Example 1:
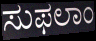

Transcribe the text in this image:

ಸುಫಲಾಂ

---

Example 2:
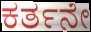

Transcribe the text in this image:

ಕರ್ತನೇ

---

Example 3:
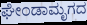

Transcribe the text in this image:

ಘೇಂಡಾಮೃಗದ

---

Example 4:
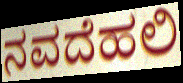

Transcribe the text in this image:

ನವದೆಹಲಿ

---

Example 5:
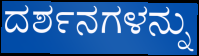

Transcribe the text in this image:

ದರ್ಶನಗಳನ್ನು